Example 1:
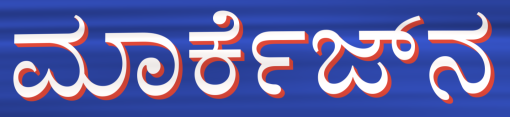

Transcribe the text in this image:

ಮಾರ್ಕೆಜ್‌ನ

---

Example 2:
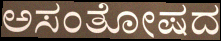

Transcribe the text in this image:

ಅಸಂತೋಷದ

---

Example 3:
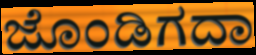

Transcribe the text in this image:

ಜೊಂಡಿಗದಾ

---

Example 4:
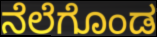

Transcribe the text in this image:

ನೆಲೆಗೊಂಡ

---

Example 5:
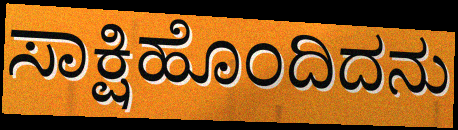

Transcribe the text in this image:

ಸಾಕ್ಷಿಹೊಂದಿದನು